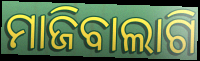
ମାଜିବାଲାଗି